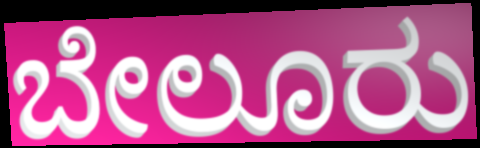
ಬೇಲೂರು